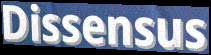
Dissensus